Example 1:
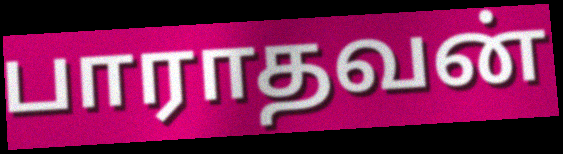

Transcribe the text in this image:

பாராதவன்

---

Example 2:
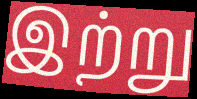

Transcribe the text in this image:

இற்று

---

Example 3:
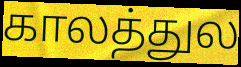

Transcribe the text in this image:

காலத்துல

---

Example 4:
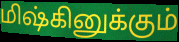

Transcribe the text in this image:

மிஷ்கினுக்கும்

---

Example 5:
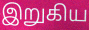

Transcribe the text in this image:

இறுகிய